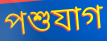
পশুযাগ